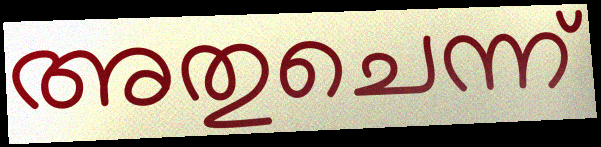
അതുചെന്ന്